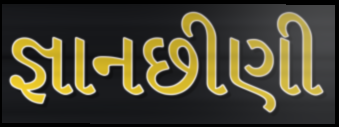
જ્ઞાનછીણી